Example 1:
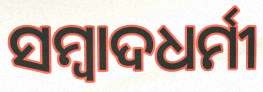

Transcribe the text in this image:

ସମ୍ବାଦଧର୍ମୀ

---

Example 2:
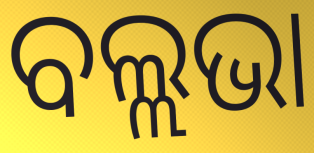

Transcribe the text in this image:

ବଲ୍ଲଭା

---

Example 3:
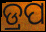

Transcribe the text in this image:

ଡ୍ରପ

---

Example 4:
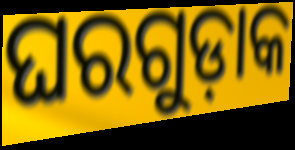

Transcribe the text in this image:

ଘରଗୁଡ଼ାକ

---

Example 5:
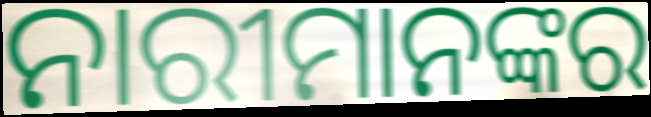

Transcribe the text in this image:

ନାରୀମାନଙ୍କର